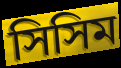
সিসিম